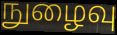
நுழைவு